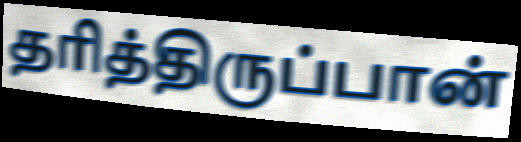
தரித்திருப்பான்